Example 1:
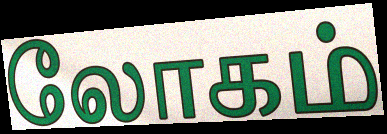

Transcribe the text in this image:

லோகம்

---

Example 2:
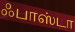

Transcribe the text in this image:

ஃபாஸ்டா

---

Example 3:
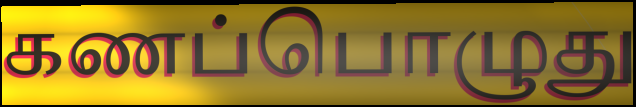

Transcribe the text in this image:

கணப்பொழுது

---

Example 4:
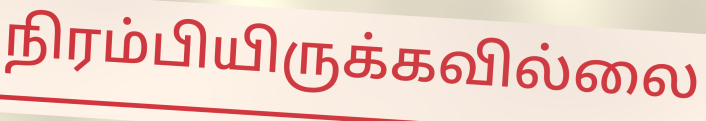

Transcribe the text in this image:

நிரம்பியிருக்கவில்லை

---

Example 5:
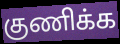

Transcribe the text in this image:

குணிக்க